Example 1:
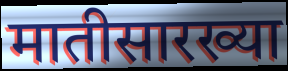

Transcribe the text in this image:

मातीसारख्या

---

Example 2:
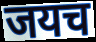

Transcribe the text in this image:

जयच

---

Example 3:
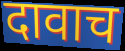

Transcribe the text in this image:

दावाच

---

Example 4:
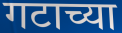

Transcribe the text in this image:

गटाच्या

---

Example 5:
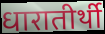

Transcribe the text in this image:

धारातीर्थी